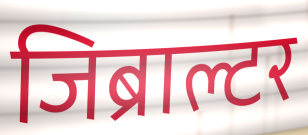
जिब्राल्टर